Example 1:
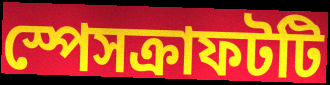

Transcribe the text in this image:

স্পেসক্রাফটটি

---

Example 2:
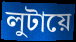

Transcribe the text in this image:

লুটায়ে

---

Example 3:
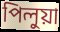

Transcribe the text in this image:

পিলুয়া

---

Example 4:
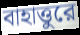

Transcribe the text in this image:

বাহাত্তুরে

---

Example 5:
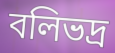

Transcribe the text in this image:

বলিভদ্র